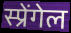
स्प्रेंगेल